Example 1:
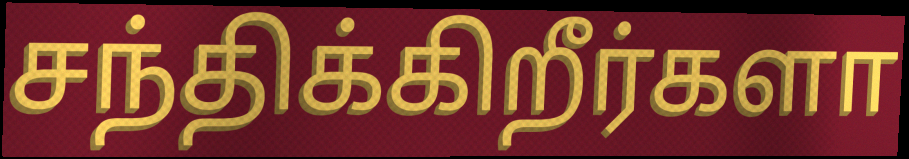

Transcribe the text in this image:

சந்திக்கிறீர்களா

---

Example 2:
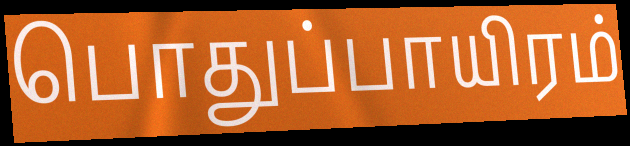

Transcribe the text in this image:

பொதுப்பாயிரம்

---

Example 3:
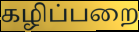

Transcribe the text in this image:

கழிப்பறை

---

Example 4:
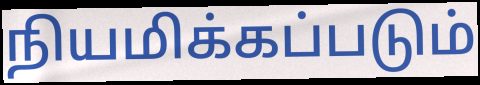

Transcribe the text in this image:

நியமிக்கப்படும்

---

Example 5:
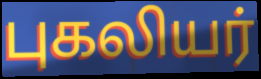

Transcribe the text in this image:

புகலியர்